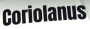
Coriolanus